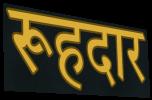
रूहदार